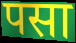
पसा